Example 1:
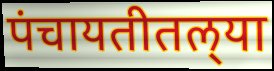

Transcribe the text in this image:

पंचायतीतल्या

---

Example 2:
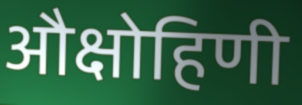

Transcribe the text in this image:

औक्षोहिणी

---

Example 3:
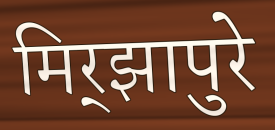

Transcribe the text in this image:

मिर्झापुरे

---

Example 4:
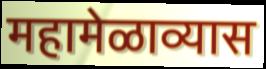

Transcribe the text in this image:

महामेळाव्यास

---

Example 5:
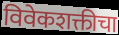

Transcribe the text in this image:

विवेकशक्तीचा